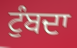
ਟੁੰਬਦਾ